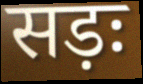
सड़ः